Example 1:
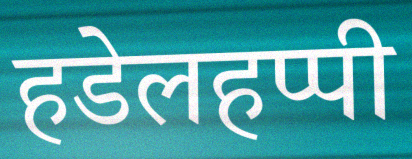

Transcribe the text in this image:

हडेलहप्पी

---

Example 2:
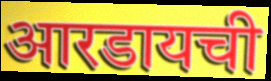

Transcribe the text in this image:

आरडायची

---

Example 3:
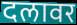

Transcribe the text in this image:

दलावर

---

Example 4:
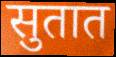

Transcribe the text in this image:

सुतात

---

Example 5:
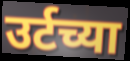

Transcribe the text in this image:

उर्टच्या